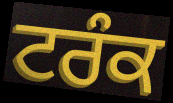
ਟਰੰਕ